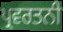
ਪ੍ਰਵਰਤਨੀ